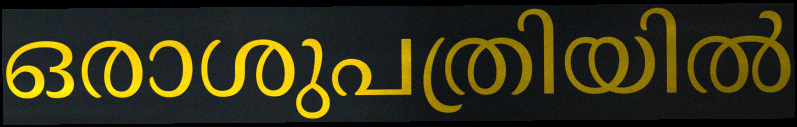
ഒരാശുപത്രിയിൽ